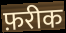
फ़रीक